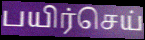
பயிர்செய்